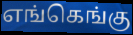
எங்கெங்கு